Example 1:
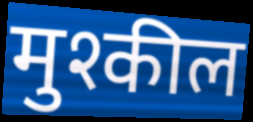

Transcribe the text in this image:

मुश्कील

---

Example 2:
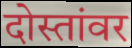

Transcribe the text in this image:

दोस्तांवर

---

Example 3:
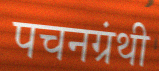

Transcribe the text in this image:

पचनग्रंथी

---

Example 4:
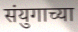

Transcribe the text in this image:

संयुगाच्या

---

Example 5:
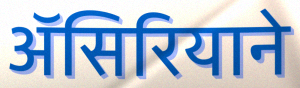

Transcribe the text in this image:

ॲसिरियाने